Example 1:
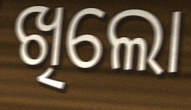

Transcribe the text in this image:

ଖିଲୋ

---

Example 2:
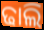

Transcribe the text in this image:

ଢାଲି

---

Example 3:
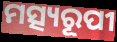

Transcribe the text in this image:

ମତ୍ସ୍ୟରୂପୀ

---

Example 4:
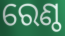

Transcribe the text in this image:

ରେଣ୍ଠ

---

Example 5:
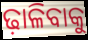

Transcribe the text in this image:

ଢ଼ାଳିବାକୁ